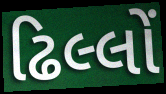
ઢિલ્લોં